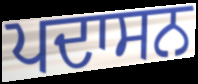
ਪਦਾਸਨ